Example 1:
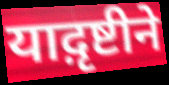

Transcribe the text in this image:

याद़ृष्टीने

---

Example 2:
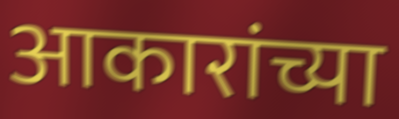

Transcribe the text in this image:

आकारांच्या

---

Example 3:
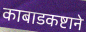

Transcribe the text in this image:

काबाडकष्टाने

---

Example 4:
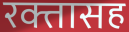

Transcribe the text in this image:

रक्तासह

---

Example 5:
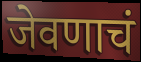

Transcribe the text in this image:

जेवणाचं